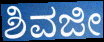
ಶಿವಜೀ